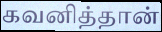
கவனித்தான்